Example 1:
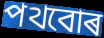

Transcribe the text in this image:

পথবোৰ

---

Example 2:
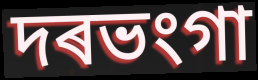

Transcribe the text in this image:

দৰভংগা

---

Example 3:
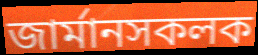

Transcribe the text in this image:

জাৰ্মানসকলক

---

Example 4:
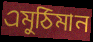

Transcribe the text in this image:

এমুঠিমান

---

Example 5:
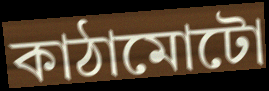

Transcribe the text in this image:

কাঠামোটো